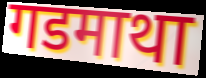
गडमाथा